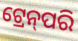
ଟ୍ରେନ୍‌ପରି